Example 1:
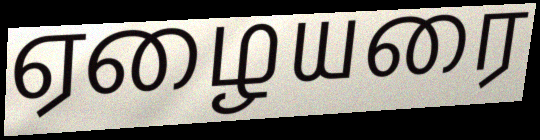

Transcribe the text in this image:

ஏழையரை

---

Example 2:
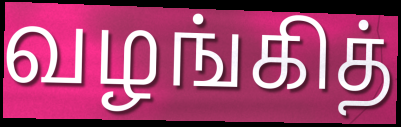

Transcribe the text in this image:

வழங்கித்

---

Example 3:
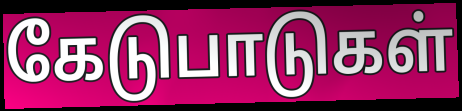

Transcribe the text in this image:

கேடுபாடுகள்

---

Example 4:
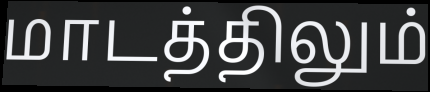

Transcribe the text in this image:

மாடத்திலும்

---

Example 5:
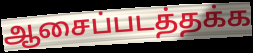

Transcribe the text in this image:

ஆசைப்படத்தக்க